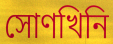
সোণখিনি